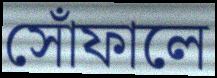
সোঁফালে